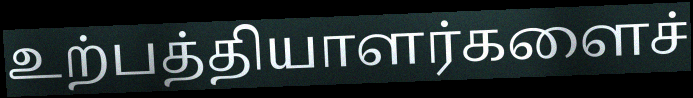
உற்பத்தியாளர்களைச்